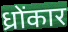
ध्रोंकार